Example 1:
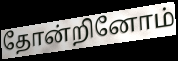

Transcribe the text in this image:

தோன்றினோம்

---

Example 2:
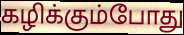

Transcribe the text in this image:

கழிக்கும்போது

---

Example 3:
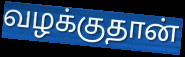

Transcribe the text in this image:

வழக்குதான்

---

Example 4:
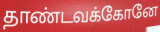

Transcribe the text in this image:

தாண்டவக்கோனே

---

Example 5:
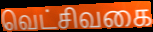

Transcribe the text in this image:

வெட்சிவகை